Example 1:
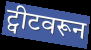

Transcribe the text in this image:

ट्वीटवरून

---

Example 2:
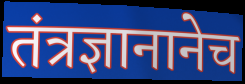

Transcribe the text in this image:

तंत्रज्ञानानेच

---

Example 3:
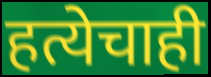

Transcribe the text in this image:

हत्येचाही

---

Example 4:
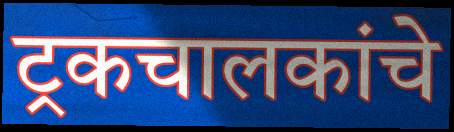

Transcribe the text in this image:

ट्रकचालकांचे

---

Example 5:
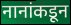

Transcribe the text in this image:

नानांकडून